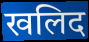
खलिद